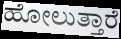
ಹೋಲುತ್ತಾರೆ